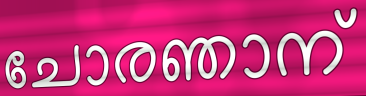
ചോരഞാന്